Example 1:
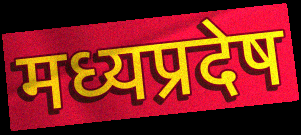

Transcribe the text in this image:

मध्यप्रदेष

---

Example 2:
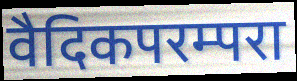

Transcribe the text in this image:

वैदिकपरम्परा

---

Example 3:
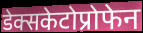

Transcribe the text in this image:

डेक्सकेटोप्रोफेन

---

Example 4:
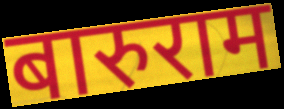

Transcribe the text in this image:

बारुराम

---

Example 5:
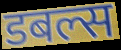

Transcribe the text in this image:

डबल्स